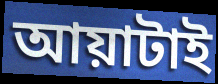
আয়াটাই